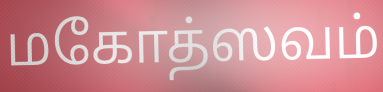
மகோத்ஸவம்